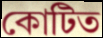
কোটিত